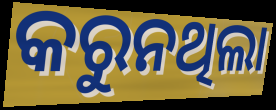
କରୁନଥିଲା